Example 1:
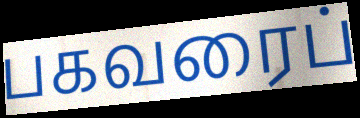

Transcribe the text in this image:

பகவரைப்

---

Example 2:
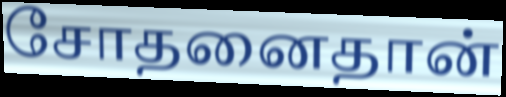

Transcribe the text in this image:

சோதனைதான்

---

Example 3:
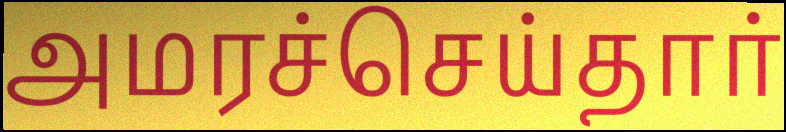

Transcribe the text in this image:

அமரச்செய்தார்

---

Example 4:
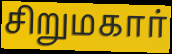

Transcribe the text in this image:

சிறுமகார்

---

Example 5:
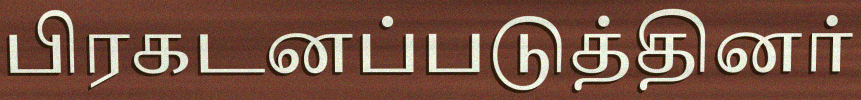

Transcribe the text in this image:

பிரகடனப்படுத்தினர்